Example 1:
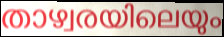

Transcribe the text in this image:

താഴ്വരയിലെയും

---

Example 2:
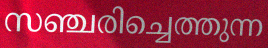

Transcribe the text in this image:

സഞ്ചരിച്ചെത്തുന്ന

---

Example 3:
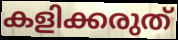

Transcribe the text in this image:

കളിക്കരുത്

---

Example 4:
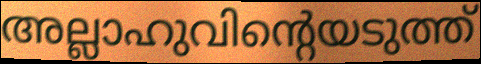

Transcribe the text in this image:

അല്ലാഹുവിന്റെയടുത്ത്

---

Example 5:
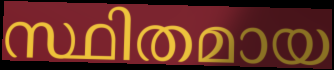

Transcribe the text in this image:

സ്ഥിതമായ